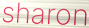
sharon